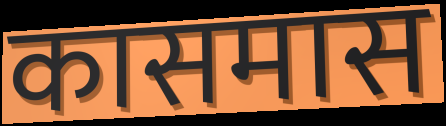
कासमास